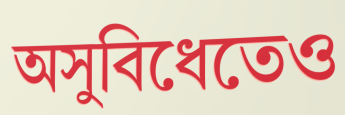
অসুবিধেতেও